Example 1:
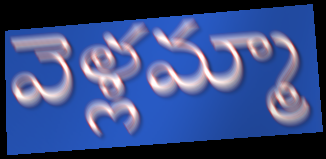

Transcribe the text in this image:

వెళ్లమ్మా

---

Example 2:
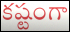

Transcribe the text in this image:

కష్టంగా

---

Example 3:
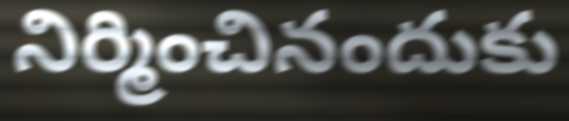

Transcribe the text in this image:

నిర్మించినందుకు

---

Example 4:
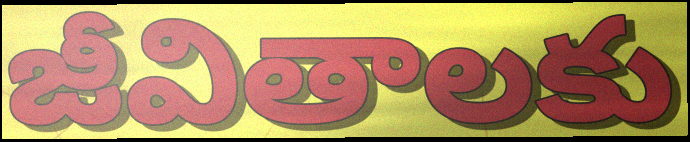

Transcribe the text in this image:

జీవితాలకు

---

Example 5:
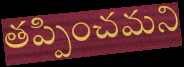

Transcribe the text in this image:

తప్పించమని